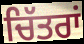
ਚਿੱਤਰਾਂ